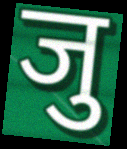
जु